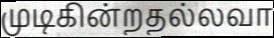
முடிகின்றதல்லவா